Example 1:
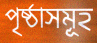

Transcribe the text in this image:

পৃষ্ঠাসমূহ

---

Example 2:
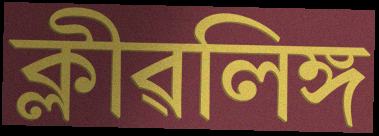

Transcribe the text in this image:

ক্লীৱলিঙ্গ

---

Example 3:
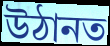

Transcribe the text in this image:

উঠানত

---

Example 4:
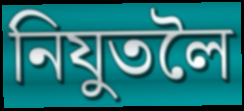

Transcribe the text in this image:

নিযুতলৈ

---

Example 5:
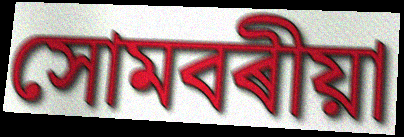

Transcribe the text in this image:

সোমবৰীয়া